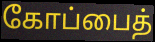
கோப்பைத்